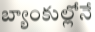
బ్యాంకుల్లోనే